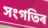
সংগতিৰ